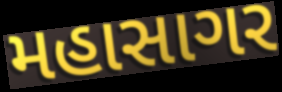
મહાસાગર